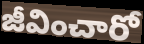
జీవించారో